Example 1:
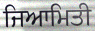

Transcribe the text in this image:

ਜਿਆਮਿਤੀ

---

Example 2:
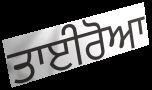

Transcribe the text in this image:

ਤਾਈਰੋਆ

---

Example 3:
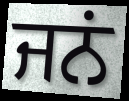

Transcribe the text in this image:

ਜਨਂ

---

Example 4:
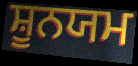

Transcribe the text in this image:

ਸ਼ੂਨਯਮ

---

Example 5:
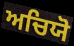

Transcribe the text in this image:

ਅਚਿਯੋ